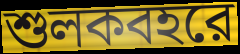
শুলকবহরে